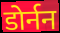
डोर्नन